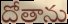
దోతాను